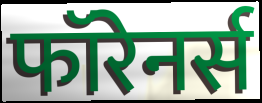
फॉरेनर्स